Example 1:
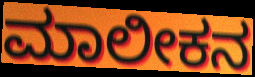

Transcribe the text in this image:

ಮಾಲೀಕನ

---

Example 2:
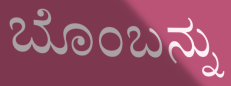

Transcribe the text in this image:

ಬೊಂಬನ್ನು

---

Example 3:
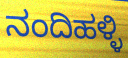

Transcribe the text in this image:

ನಂದಿಹಳ್ಳಿ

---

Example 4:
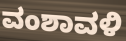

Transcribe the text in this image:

ವಂಶಾವಳಿ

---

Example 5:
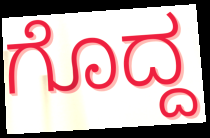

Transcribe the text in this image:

ಗೊದ್ದ